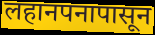
लहानपनापासून